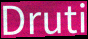
Druti